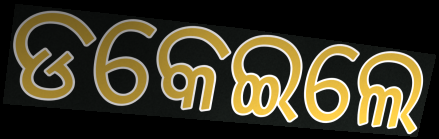
ଡକେଇଲେ